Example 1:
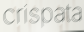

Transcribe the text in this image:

crispata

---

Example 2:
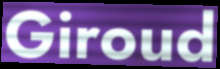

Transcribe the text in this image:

Giroud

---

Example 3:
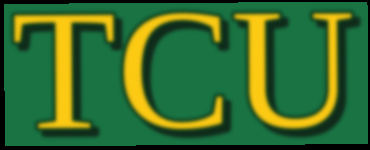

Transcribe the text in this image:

TCU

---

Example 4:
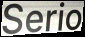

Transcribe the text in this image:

Serio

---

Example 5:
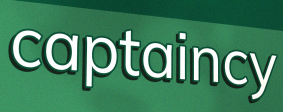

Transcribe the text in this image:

captaincy